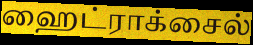
ஹைட்ராக்சைல்